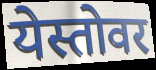
येस्तोवर